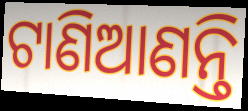
ଟାଣିଆଣନ୍ତି